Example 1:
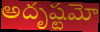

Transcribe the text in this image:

అదృష్టమో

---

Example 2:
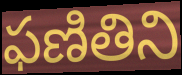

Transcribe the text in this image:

ఫణితిని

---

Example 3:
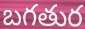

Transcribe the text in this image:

బగతుర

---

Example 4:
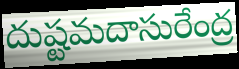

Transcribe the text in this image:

దుష్టమదాసురేంద్ర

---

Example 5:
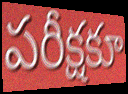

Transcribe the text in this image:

పరీక్షకూ